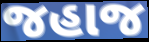
જહાજ